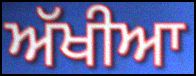
ਅੱਖੀਆ